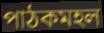
পাঠকমহল